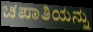
ಚಪಾತಿಯನ್ನು